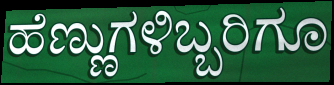
ಹೆಣ್ಣುಗಳಿಬ್ಬರಿಗೂ